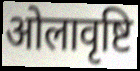
ओलावृष्टि